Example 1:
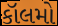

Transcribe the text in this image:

કૉલમો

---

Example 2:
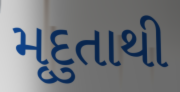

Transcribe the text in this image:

મૃદુતાથી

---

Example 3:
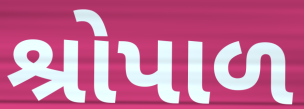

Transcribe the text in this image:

શ્રોપાળ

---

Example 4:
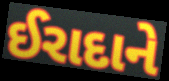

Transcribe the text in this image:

ઈરાદાને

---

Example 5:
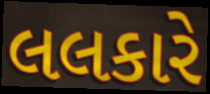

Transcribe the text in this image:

લલકારે